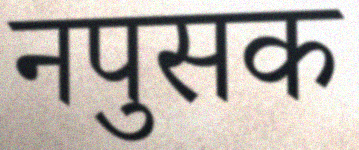
नपुसक